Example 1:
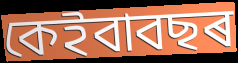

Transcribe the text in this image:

কেইবাবছৰ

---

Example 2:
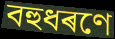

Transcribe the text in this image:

বহুধৰণে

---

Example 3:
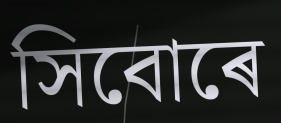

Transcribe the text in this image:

সিবোৰে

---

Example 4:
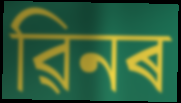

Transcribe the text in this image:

ৱিনৰ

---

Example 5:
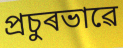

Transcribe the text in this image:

প্ৰচুৰভাৱে